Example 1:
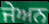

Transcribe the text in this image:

ਜੇਅਨ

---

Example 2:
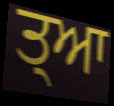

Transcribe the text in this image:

ਤ੍ਆ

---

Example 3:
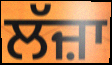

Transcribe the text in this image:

ਲੱਜ਼ਾ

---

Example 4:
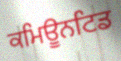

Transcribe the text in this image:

ਕਮਿਊਨਟਿਡ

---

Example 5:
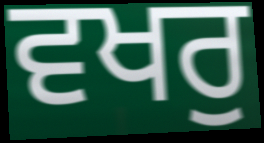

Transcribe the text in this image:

ਵਖਰੁ